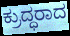
ಕ್ರುದ್ಧರಾದ